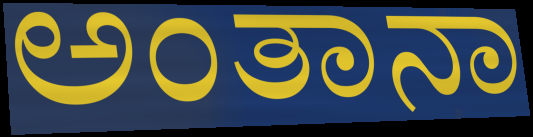
ಅಂತಾನಾ